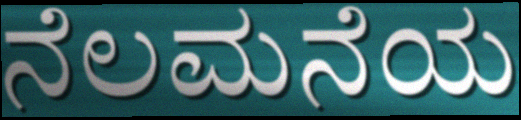
ನೆಲಮನೆಯ